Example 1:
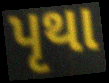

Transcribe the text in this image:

પૃથા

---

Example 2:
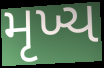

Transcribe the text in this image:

મૃખ્ય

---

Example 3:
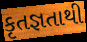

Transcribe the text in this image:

કૃતજ્ઞતાથી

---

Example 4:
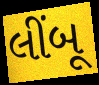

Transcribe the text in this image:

લીંબૂ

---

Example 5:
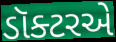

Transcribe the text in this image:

ડૉક્ટરએ